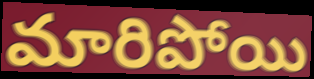
మారిపోయి